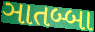
ઞાતબ્બા